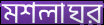
মশলাঘর